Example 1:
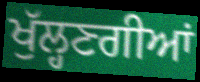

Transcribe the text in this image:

ਖੁੱਲ੍ਹਣਗੀਆਂ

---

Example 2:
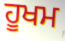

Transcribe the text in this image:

ਹੂਖਮ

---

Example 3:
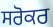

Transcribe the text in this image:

ਸਰੋਕਰ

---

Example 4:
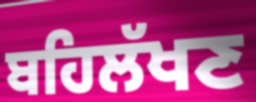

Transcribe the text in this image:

ਬਹਿਲੱਖਣ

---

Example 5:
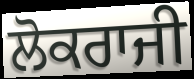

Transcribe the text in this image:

ਲੋਕਰਾਜੀ